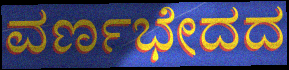
ವರ್ಣಭೇದದ